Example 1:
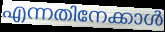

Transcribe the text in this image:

എന്നതിനേക്കാൾ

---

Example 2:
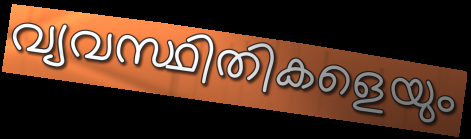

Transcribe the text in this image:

വ്യവസ്ഥിതികളെയും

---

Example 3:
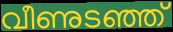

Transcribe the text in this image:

വീണുടഞ്ഞ്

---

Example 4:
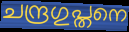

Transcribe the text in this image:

ചന്ദ്രഗുപ്തനെ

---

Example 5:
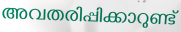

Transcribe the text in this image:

അവതരിപ്പിക്കാറുണ്ട്